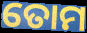
ତୋମ